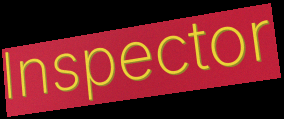
Inspector